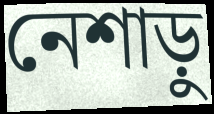
নেশাড়ু